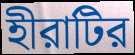
হীরাটির